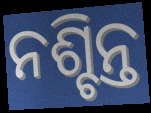
ନଶ୍ଚିନ୍ତ